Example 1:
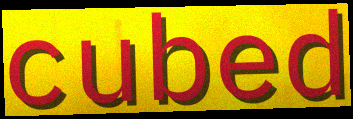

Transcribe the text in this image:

cubed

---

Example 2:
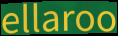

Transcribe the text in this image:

ellaroo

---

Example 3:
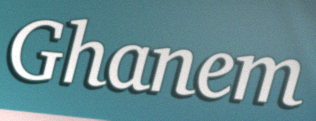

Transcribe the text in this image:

Ghanem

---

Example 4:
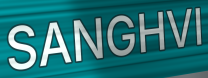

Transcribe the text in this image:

SANGHVI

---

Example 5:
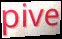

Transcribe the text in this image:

pive